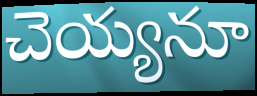
చెయ్యనూ